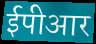
ईपीआर